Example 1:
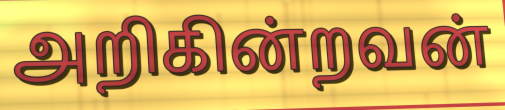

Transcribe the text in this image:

அறிகின்றவன்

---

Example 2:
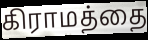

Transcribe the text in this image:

கிராமத்தை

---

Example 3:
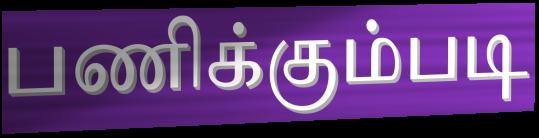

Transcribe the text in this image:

பணிக்கும்படி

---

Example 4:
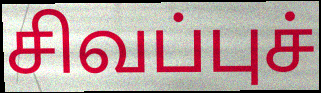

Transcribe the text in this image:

சிவப்புச்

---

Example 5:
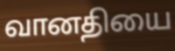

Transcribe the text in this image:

வானதியை